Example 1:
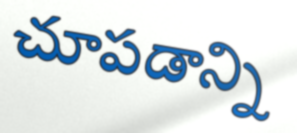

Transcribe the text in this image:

చూపడాన్ని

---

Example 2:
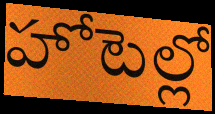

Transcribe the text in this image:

హోటెల్లో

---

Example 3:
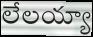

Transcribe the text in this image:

లేలయ్యా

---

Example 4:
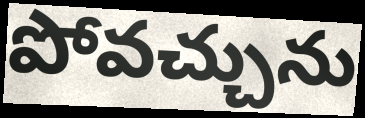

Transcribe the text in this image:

పోవచ్చును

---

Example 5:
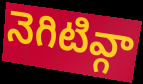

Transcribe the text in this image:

నెగిటివ్గా